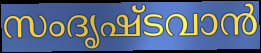
സംദൃഷ്ടവാൻ